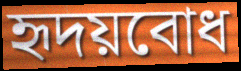
হৃদয়বোধ